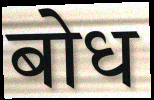
बोध